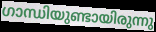
ഗാന്ധിയുണ്ടായിരുന്നു